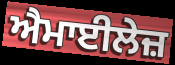
ਐਮਾਈਲੇਜ਼